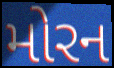
મોરન